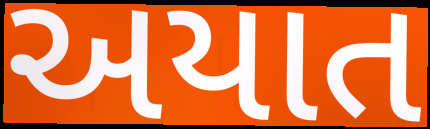
અયાત